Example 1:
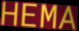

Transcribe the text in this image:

HEMA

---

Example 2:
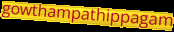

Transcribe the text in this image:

gowthampathippagam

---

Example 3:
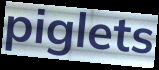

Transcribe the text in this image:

piglets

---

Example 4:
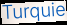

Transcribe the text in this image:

Turquie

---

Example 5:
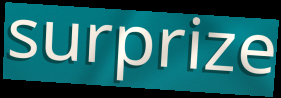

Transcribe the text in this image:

surprize